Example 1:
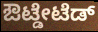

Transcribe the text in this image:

ಔಟ್ಡೇಟೆಡ್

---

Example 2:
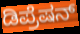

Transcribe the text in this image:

ಡಿಪ್ರೆಷನ್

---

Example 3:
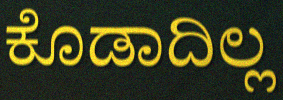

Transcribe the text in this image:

ಕೊಡಾದಿಲ್ಲ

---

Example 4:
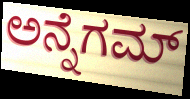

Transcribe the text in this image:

ಅನ್ನೆಗಮ್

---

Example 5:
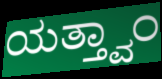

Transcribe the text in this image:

ಯತ್ತ್ವಾಂ